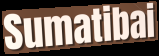
Sumatibai